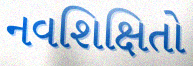
નવશિક્ષિતો